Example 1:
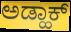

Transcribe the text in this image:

ಅಡ್ಹಾಕ್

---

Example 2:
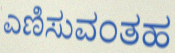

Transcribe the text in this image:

ಎಣಿಸುವಂತಹ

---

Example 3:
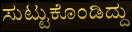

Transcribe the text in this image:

ಸುಟ್ಟುಕೊಂಡಿದ್ದು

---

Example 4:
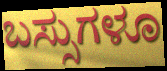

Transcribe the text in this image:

ಬಸ್ಸುಗಳೂ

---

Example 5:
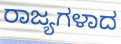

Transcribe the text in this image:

ರಾಜ್ಯಗಳಾದ